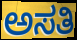
ಅಸತಿ